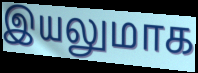
இயலுமாக